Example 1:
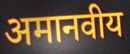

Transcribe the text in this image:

अमानवीय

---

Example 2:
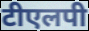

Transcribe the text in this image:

टीएलपी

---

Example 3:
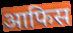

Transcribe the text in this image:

आफिस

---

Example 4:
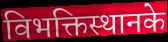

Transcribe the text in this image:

विभक्तिस्थानके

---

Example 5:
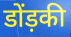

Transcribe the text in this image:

डोंड़की